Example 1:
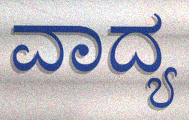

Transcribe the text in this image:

ವಾದ್ಯ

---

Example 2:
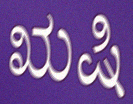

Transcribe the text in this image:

ಋಷಿ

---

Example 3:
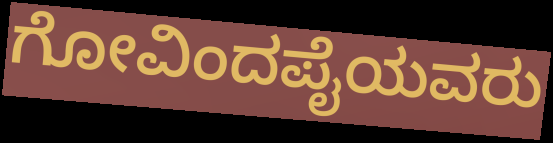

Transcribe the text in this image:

ಗೋವಿಂದಪೈಯವರು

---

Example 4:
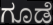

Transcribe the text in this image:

ಗೂಡೆ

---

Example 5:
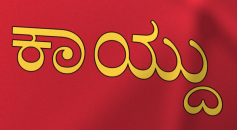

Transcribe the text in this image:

ಕಾಯ್ದು